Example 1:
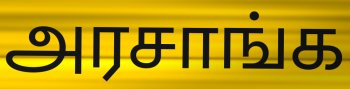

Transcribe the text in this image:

அரசாங்க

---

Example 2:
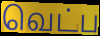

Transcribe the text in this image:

வெட்ப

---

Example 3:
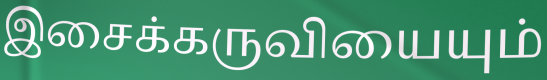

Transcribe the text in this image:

இசைக்கருவியையும்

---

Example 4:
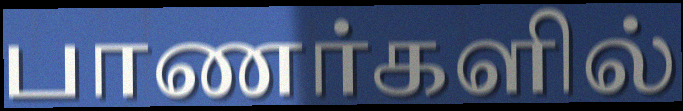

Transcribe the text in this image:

பாணர்களில்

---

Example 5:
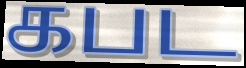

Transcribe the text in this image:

கபட